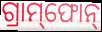
ଗ୍ରାମ୍‌ଫୋନ୍